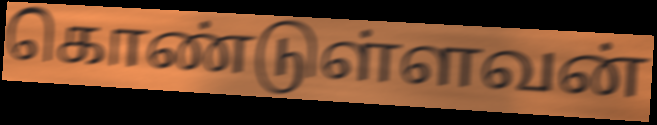
கொண்டுள்ளவன்